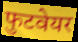
फुटवेयर